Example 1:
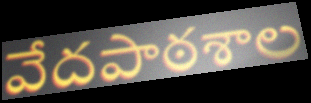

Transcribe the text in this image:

వేదపాఠశాల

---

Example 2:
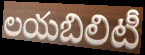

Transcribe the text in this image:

లయబిలిటీ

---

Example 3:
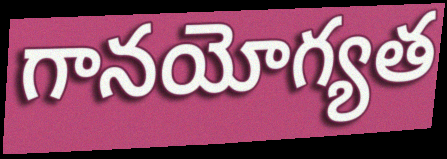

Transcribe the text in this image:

గానయోగ్యత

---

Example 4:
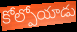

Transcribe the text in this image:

కోల్పోయాడు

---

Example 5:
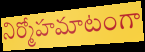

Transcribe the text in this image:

నిర్మోహమాటంగా